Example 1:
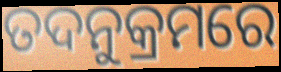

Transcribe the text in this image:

ତଦନୁକ୍ରମରେ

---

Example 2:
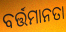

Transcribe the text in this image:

ବର୍ତ୍ତମାନତା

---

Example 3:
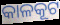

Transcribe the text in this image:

କାଳକୂଟ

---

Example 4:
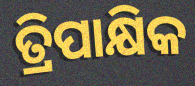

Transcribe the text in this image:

ତ୍ରିପାକ୍ଷିକ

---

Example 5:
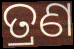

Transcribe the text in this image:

ତ୍ରଣ